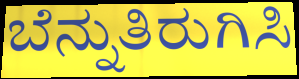
ಬೆನ್ನುತಿರುಗಿಸಿ